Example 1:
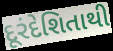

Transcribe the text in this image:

દૂરંદેશિતાથી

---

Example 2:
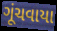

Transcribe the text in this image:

ગૂંચવાયા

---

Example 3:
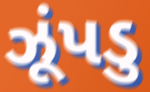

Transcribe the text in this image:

ઝૂંપડુ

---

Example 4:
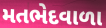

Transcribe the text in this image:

મતભેદવાળા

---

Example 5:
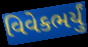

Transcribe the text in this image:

વિવેકભર્યું